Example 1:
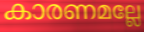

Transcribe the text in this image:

കാരണമല്ലേ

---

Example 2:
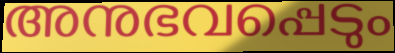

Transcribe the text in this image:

അനുഭവപ്പെടും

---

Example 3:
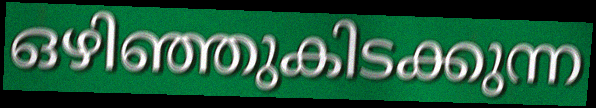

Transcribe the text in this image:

ഒഴിഞ്ഞുകിടക്കുന്ന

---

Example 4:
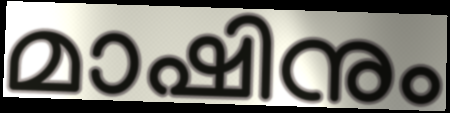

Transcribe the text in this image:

മാഷിനും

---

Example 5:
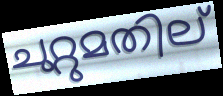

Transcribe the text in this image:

ചുറ്റുമതില്